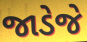
જાડેજે